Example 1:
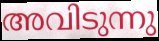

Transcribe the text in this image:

അവിടുന്നു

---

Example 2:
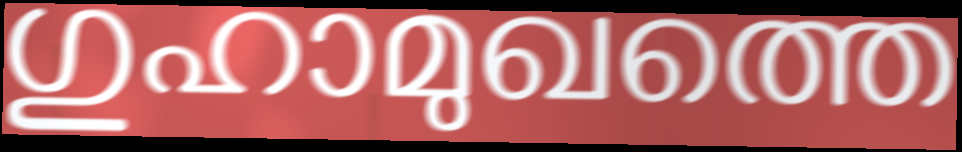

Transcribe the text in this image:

ഗുഹാമുഖത്തെ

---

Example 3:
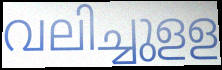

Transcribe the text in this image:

വലിച്ചുളള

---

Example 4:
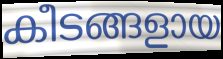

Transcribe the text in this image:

കീടങ്ങളായ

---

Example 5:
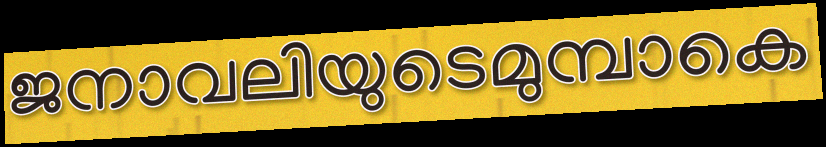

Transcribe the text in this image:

ജനാവലിയുടെമുമ്പാകെ